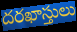
దరఖాస్తులు